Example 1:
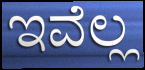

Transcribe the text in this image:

ಇವೆಲ್ಲ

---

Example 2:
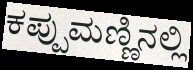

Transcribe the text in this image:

ಕಪ್ಪುಮಣ್ಣಿನಲ್ಲಿ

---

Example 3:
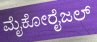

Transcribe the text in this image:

ಮೈಕೋರೈಜಲ್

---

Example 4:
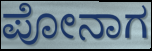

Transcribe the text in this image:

ಪೋನಾಗ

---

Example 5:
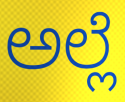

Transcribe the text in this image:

ಅಲ್ಲೆ